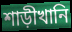
শাড়ীখানি